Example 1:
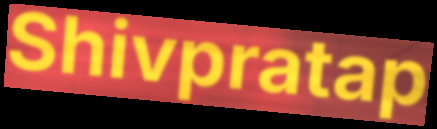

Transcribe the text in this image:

Shivpratap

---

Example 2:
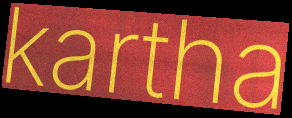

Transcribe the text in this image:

kartha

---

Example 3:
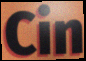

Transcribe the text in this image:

Cin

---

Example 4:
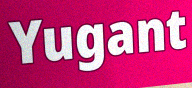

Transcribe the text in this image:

Yugant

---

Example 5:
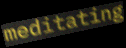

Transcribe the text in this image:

meditating